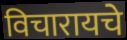
विचारायचे